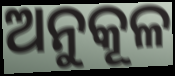
ଅନୁକୂଳ